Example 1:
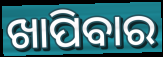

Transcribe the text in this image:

ଖାପିବାର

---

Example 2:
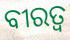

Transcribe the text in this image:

ବୀରତ୍ଵ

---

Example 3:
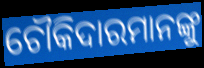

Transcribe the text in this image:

ଚୌକିଦାରମାନଙ୍କୁ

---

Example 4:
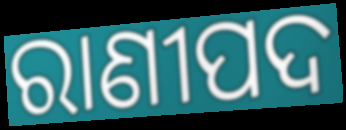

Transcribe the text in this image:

ରାଣୀପଦ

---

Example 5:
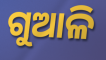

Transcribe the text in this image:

ଗୁଆଳି